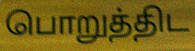
பொறுத்திட